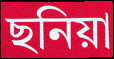
ছনিয়া